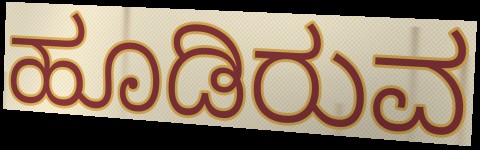
ಹೂಡಿರುವ